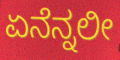
ಏನೆನ್ನಲೀ